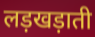
लड़खड़ाती